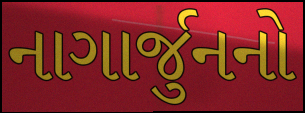
નાગાર્જુનનો